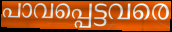
പാവപ്പെട്ടവരെ